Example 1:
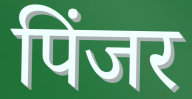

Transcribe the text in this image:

पिंजर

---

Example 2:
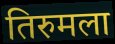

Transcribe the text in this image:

तिरुमला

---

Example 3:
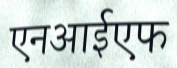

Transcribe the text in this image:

एनआईएफ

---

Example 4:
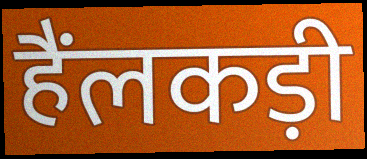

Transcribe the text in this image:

हैंलकड़ी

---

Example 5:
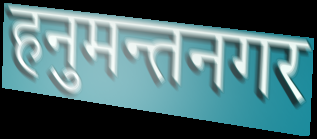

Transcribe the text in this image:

हनुमन्तनगर